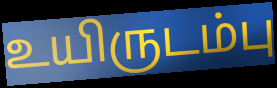
உயிருடம்பு